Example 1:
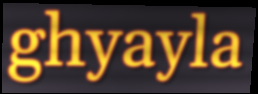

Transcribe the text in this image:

ghyayla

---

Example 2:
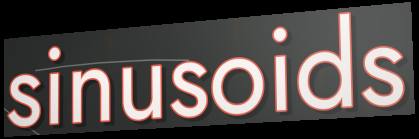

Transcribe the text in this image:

sinusoids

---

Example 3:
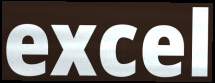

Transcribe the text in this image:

excel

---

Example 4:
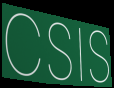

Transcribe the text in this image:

CSIS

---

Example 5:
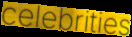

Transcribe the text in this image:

celebrities